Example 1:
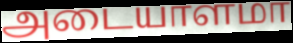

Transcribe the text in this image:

அடையாளமா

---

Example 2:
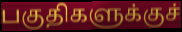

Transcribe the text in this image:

பகுதிகளுக்குச்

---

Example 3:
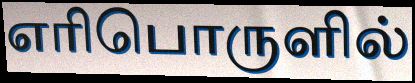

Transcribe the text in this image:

எரிபொருளில்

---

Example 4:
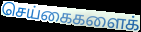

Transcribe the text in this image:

செய்கைகளைக்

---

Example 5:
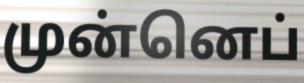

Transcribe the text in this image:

முன்னெப்